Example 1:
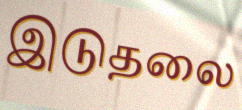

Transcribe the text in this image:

இடுதலை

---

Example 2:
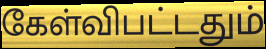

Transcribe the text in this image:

கேள்விபட்டதும்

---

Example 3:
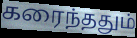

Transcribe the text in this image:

கரைந்ததும்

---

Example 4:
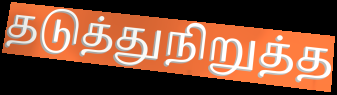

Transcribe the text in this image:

தடுத்துநிறுத்த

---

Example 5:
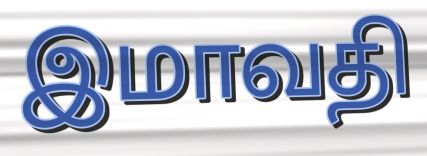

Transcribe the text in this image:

இமாவதி